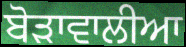
ਬੋੜਾਵਾਲੀਆ